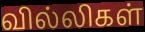
வில்லிகள்